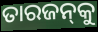
ତାରଜନ୍‌କୁ